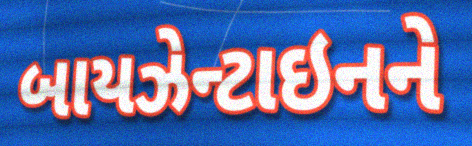
બાયઝેન્ટાઇનને